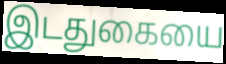
இடதுகையை